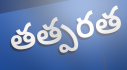
తత్పరత